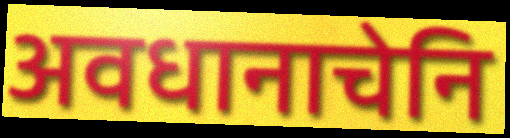
अवधानाचेनि